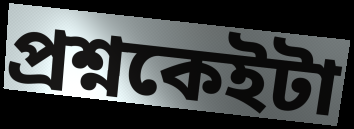
প্ৰশ্নকেইটা